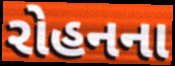
રોહનના